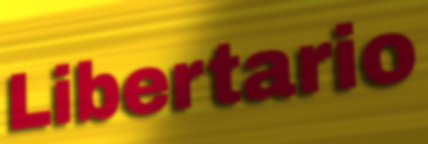
Libertario